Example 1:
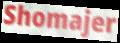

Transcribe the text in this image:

Shomajer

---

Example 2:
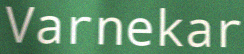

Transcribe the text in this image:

Varnekar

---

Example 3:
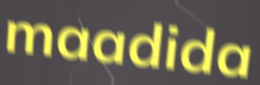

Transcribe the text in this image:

maadida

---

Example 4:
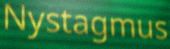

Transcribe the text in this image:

Nystagmus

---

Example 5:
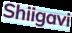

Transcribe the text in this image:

Shiigavi